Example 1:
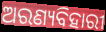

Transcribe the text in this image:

ଅରଣ୍ୟବିହାରୀ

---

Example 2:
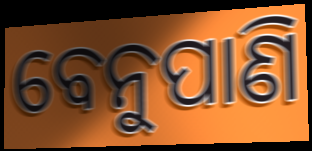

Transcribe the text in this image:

ବେନୁପାଣି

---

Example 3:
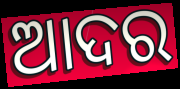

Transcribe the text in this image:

ଆଦର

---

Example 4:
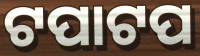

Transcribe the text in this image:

ଟପାଟପ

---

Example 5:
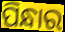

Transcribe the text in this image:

ପିନ୍ଧାର